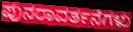
ಪುನರಾವರ್ತನೆಗಳು